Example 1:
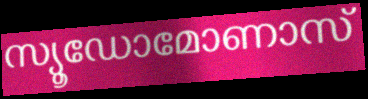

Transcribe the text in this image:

സ്യൂഡോമോണാസ്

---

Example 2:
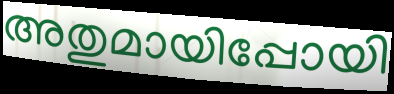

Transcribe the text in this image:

അതുമായിപ്പോയി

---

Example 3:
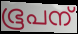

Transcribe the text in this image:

ഭൂപന്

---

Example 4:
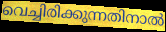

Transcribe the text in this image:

വെച്ചിരിക്കുന്നതിനാൽ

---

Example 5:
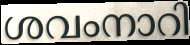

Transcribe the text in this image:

ശവംനാറി